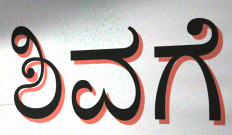
ಶಿವಗೆ